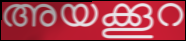
അയക്കൂറ